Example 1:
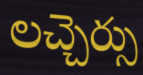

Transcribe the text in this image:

లచ్చెర్సు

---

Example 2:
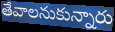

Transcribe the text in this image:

తేవాలనుకున్నారు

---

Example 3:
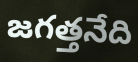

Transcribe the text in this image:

జగత్తనేది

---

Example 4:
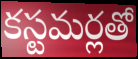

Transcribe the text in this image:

కస్టమర్లతో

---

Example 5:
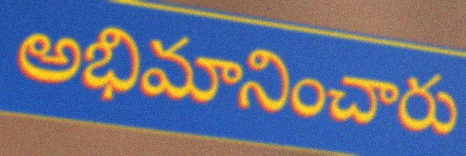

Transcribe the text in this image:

అభిమానించారు